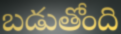
బడుతోంది